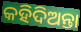
କହିଦିଅନ୍ତା